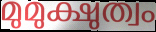
മുമുക്ഷുത്വം